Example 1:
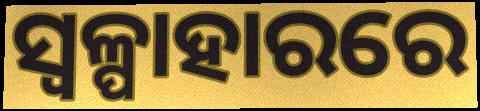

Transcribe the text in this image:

ସ୍ୱଳ୍ପାହାରରେ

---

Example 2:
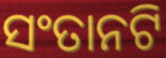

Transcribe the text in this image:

ସଂତାନଟି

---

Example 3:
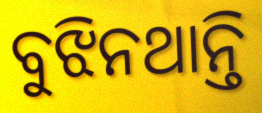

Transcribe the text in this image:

ବୁଝିନଥାନ୍ତି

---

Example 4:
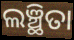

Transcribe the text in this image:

ଲଞ୍ଛିତା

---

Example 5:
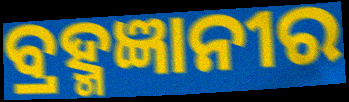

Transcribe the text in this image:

ବ୍ରହ୍ମଜ୍ଞାନୀର